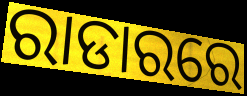
ରାଡାରରେ